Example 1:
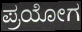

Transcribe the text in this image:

ಪ್ರಯೋಗ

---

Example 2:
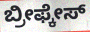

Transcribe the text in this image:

ಬ್ರೀಫ್ಕೇಸ್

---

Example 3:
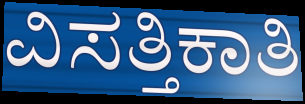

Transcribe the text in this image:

ವಿಸತ್ತಿಕಾತಿ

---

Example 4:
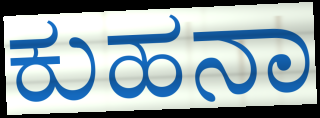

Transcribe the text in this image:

ಕುಹನಾ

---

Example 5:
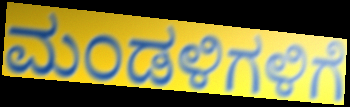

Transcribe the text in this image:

ಮಂಡಳಿಗಳಿಗೆ